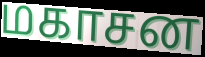
மகாசன